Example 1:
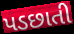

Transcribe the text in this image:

પડછાતી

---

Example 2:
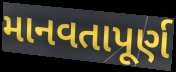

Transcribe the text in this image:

માનવતાપૂર્ણ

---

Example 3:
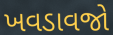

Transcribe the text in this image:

ખવડાવજો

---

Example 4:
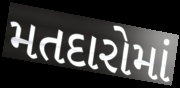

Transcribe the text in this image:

મતદારોમાં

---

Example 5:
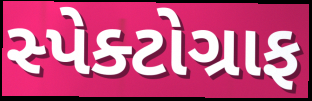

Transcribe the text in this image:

સ્પેક્ટોગ્રાફ